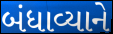
બંધાવ્યાને